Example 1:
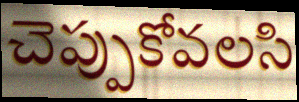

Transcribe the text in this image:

చెప్పుకోవలసి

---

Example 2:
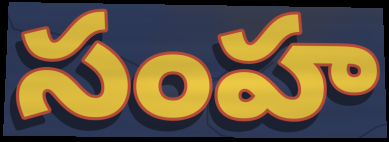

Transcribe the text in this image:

సంహ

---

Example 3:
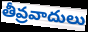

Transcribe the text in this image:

తీవ్రవాదులు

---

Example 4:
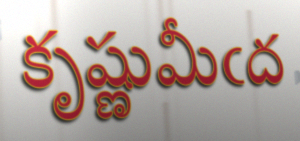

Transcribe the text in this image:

కృష్ణుమీఁద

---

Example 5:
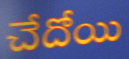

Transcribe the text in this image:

చేదోయి